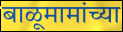
बाळूमामांच्या